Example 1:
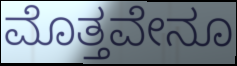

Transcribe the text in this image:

ಮೊತ್ತವೇನೂ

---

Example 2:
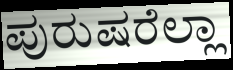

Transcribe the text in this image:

ಪುರುಷರೆಲ್ಲಾ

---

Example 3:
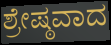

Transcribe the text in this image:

ಶ್ರೇಷ್ಠವಾದ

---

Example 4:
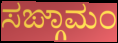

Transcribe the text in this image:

ಸಙ್ಗಾಮಂ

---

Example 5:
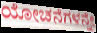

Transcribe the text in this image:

ಯೋಚನೆಗಳನ್ನೇ